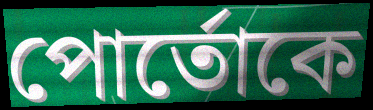
পোর্তোকে